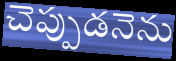
చెప్పుడనెను